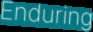
Enduring